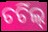
ଚର୍ଚିଲ୍